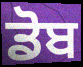
ਡੋਬ